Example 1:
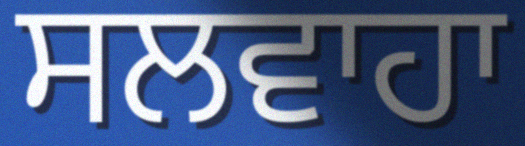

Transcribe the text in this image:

ਸਲਵਾਹਾ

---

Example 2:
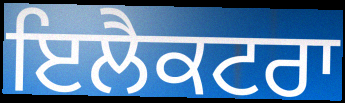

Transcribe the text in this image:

ਇਲੈਕਟਰਾ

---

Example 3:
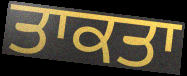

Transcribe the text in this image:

ਤਾਕਤਾ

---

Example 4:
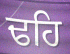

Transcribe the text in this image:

ਢਹਿ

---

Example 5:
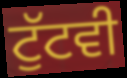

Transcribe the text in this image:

ਟੁੱਟਵੀ